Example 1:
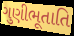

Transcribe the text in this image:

ગુણીભૂતાતિ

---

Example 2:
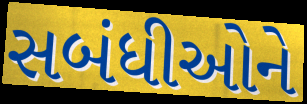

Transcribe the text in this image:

સબંધીઓને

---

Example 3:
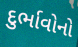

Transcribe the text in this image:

દુર્ભાવોનો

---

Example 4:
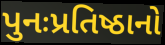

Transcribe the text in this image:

પુનઃપ્રતિષ્ઠાનો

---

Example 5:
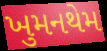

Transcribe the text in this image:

ખુમનથેમ